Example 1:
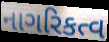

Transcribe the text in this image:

નાગરિકત્વ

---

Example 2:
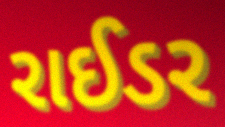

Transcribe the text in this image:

રાઈડર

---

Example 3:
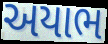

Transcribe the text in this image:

અયાભ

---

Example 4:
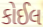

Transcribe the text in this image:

કોઈલ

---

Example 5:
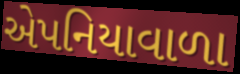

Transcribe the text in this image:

એપનિયાવાળા